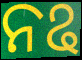
ନୡ